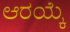
ಆರಯ್ಕೆ